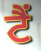
ਟੈੰ